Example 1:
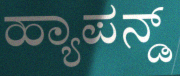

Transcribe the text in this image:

ಹ್ಯಾಪನ್ಡ್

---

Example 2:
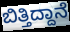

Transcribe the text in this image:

ಬಿತ್ತಿದ್ದಾನೆ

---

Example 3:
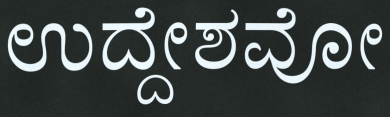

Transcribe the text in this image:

ಉದ್ದೇಶವೋ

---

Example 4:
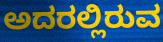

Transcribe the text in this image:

ಅದರಲ್ಲಿರುವ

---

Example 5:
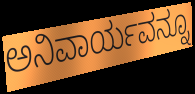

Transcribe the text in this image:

ಅನಿವಾರ್ಯವನ್ನೂ